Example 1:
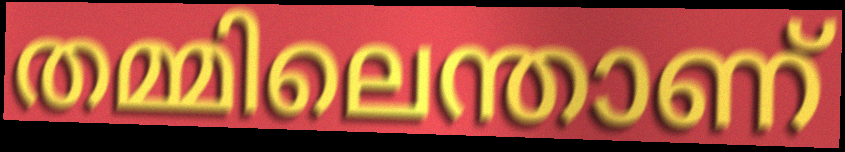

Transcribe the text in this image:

തമ്മിലെന്താണ്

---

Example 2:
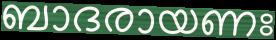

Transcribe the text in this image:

ബാദരായണഃ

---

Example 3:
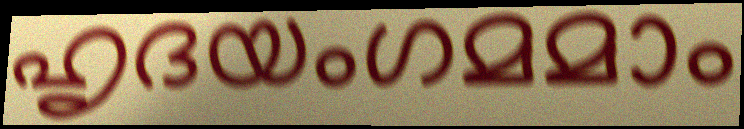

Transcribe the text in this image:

ഹൃദയംഗമമാം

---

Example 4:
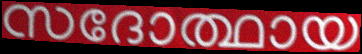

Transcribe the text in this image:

സദോത്ഥായ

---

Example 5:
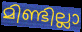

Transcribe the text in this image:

മിണ്ടില്ലാ